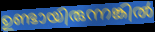
ഉണ്ടായിരുന്നങ്കിൽ